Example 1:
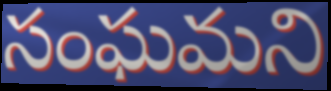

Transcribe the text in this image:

సంఘమని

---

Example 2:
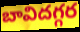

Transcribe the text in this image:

బావిదగ్గర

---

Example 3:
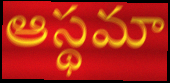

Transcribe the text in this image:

ఆస్థమా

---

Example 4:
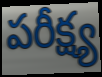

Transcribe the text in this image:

పరీక్ష్య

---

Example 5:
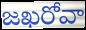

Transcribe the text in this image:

జఖరోవా